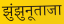
झुंझुनूताजा